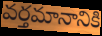
వర్తమానానికి